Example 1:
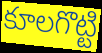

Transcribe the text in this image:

కూలగొట్టి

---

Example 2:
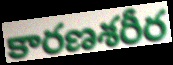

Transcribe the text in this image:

కారణశరీర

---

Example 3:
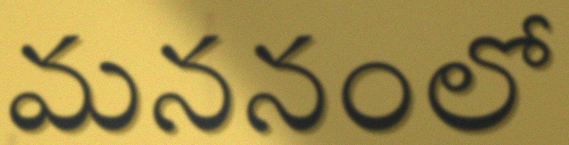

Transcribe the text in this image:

మననంలో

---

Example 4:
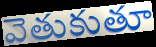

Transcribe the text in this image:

వెతుకుతూ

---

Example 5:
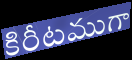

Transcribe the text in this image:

కిరీటముగా